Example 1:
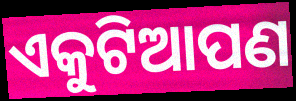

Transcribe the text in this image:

ଏକୁଟିଆପଣ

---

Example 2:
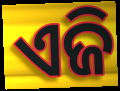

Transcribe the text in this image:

ଏଜି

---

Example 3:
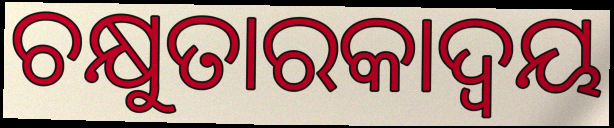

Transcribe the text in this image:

ଚକ୍ଷୁତାରକାଦ୍ଵୟ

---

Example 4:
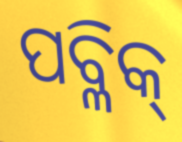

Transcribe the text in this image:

ପବ୍ଳିକ୍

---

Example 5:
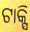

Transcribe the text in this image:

ଟାକ୍ସି